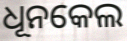
ଧୂନକେଲ